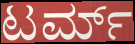
ಟರ್ಮ್